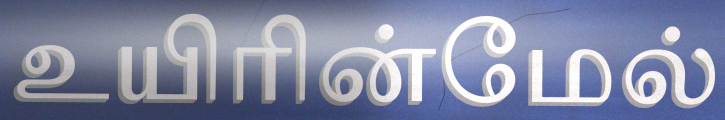
உயிரின்மேல்